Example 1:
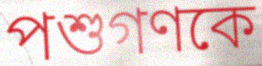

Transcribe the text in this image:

পশুগণকে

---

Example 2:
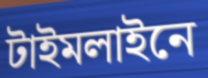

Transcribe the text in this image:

টাইমলাইনে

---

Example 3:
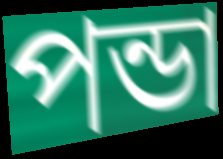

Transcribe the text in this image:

পন্ডা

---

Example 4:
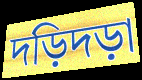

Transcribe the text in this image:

দড়িদড়া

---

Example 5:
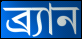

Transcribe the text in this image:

ব্র্যান